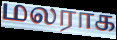
மலராக